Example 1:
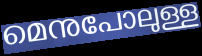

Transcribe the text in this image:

മെനുപോലുള്ള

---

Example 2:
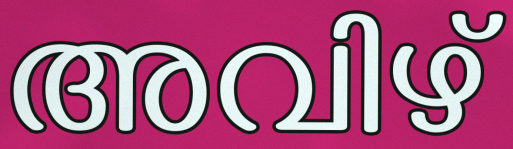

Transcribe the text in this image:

അവിഴ്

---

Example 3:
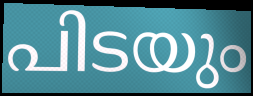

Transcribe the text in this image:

പിടയും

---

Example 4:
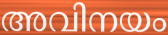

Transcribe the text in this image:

അവിനയം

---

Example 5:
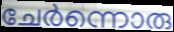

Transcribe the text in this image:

ചേർന്നൊരു